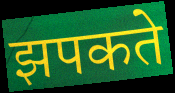
झपकते